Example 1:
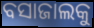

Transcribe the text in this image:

ବସାଜାଲକୁ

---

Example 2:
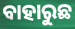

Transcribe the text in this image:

ବାହାରୁଛ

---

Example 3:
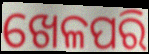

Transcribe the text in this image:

ଖେଳପରି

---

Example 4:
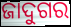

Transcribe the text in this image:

ଜାଦୁଗର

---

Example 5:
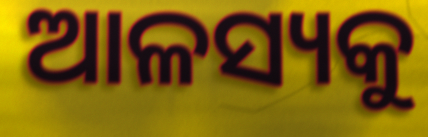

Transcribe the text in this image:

ଆଳସ୍ୟକୁ